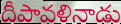
దీపావళినాడు